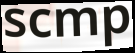
scmp